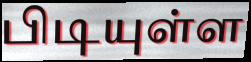
பிடியுள்ள